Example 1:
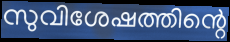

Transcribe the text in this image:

സുവിശേഷത്തിന്റെ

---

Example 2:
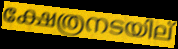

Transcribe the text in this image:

ക്ഷേത്രനടയില്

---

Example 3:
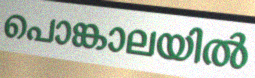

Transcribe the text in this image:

പൊങ്കാലയിൽ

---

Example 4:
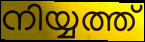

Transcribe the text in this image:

നിയ്യത്ത്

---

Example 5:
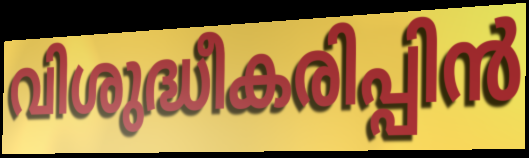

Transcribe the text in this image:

വിശുദ്ധീകരിപ്പിൻ